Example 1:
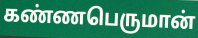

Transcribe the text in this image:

கண்ணபெருமான்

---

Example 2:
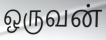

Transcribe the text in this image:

ஒருவன்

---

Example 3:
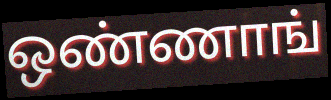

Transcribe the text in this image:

ஒண்ணாங்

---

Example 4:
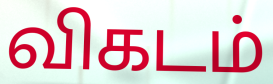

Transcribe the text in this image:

விகடம்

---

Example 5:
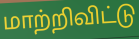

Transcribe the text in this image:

மாற்றிவிட்டு